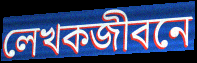
লেখকজীবনে